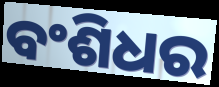
ବଂଶିଧର